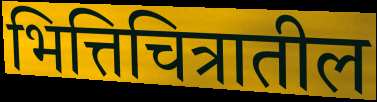
भित्तिचित्रातील